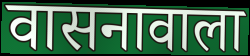
वासनावाला